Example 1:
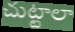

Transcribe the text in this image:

చుట్టాలా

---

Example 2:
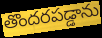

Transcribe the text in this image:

తొందరపడ్డాను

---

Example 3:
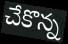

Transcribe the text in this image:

చేకొన్న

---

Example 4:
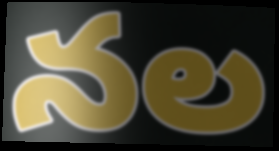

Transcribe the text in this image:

నల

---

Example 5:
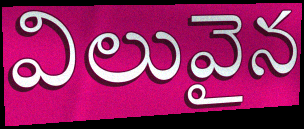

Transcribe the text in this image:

విలువైన